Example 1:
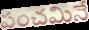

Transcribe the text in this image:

పంచమినే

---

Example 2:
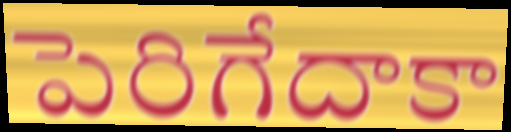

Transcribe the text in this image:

పెరిగేదాకా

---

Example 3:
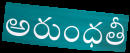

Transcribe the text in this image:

అరుంధతీ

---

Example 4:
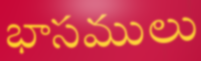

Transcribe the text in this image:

భాసములు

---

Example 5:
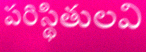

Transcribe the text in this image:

పరిస్థితులవి